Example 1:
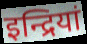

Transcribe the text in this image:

इन्द्रियां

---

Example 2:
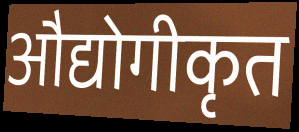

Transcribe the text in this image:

औद्योगीकृत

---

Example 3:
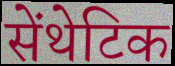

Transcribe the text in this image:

सेंथेटिक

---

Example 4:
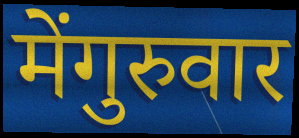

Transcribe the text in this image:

मेंगुरुवार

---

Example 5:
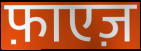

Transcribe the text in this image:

फ़ाएज़